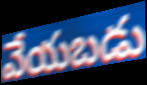
వేయబడు